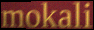
mokali